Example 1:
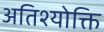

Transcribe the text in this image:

अतिश्योक्ति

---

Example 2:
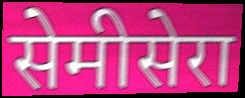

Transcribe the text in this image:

सेमीसेरा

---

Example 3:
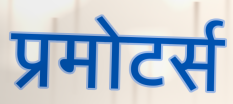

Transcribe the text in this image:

प्रमोटर्स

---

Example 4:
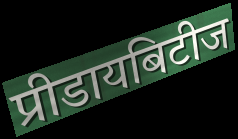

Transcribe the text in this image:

प्रीडायबिटीज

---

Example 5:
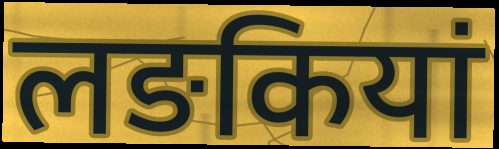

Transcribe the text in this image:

लङकियां